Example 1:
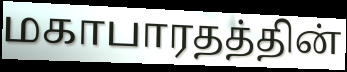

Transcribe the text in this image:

மகாபாரதத்தின்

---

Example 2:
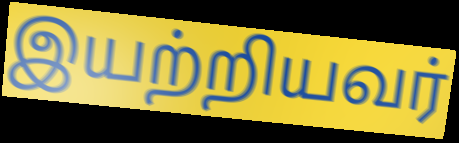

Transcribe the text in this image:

இயற்றியவர்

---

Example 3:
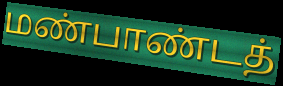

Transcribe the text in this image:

மண்பாண்டத்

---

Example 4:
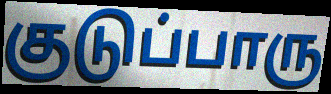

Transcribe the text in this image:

குடுப்பாரு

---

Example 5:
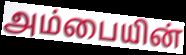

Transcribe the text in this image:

அம்பையின்